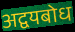
अद्वयबोध